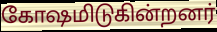
கோஷமிடுகின்றனர்